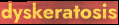
dyskeratosis